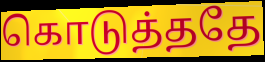
கொடுத்ததே